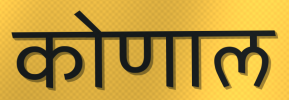
कोणाल